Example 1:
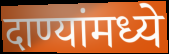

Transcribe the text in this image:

दाण्यांमध्ये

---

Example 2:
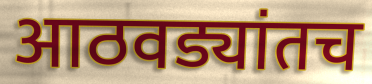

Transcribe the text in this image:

आठवड्यांतच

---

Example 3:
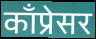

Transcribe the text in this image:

काँप्रेसर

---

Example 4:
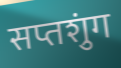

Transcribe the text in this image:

सप्तश्रुंग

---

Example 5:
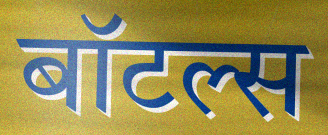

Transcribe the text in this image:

बॉटल्स